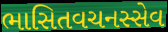
ભાસિતવચનસ્સેવ